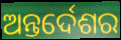
ଅନ୍ତର୍ଦେଶର